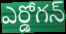
ఎర్డోగన్